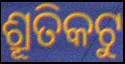
ଶ୍ରୂତିକଟୁ